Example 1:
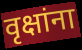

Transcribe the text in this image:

वृक्षांना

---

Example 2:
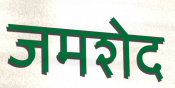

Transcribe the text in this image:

जमशेद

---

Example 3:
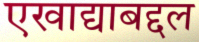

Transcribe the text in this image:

एखाद्याबद्दल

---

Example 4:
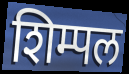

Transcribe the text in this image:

शिम्पल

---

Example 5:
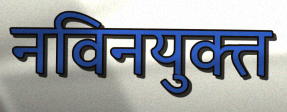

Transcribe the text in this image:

नविनयुक्त